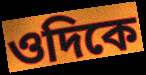
ওদিকে